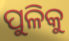
ପୁଳିକୁ